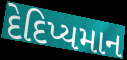
દેદિપ્યમાન